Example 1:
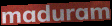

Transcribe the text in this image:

maduram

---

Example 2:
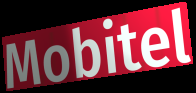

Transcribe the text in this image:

Mobitel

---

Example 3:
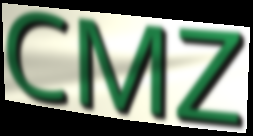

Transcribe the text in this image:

CMZ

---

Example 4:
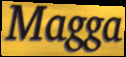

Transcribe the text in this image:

Magga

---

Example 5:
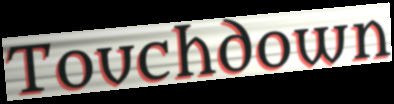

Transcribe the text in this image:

Touchdown